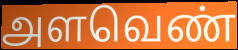
அளவெண்